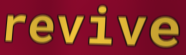
revive